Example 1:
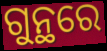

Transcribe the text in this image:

ଗୁନ୍ଥରେ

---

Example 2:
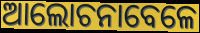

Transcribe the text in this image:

ଆଲୋଚନାବେଳେ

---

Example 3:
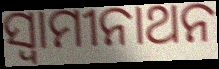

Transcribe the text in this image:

ସ୍ୱାମୀନାଥନ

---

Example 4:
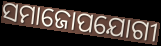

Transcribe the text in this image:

ସମାଜୋପଯୋଗୀ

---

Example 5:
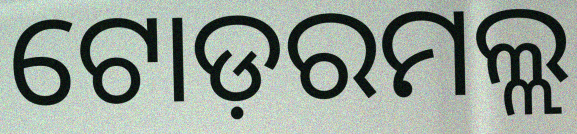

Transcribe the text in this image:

ଟୋଡ଼ରମଲ୍ଲ